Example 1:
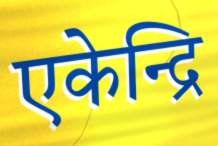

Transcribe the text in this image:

एकेन्द्रि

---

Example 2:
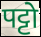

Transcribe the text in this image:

पट्टो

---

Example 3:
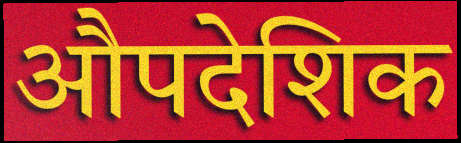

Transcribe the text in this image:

औपदेशिक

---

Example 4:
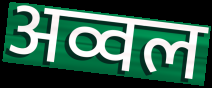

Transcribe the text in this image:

अव्वल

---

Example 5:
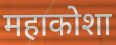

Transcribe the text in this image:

महाकोशा